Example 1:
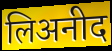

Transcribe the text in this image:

लिअनीद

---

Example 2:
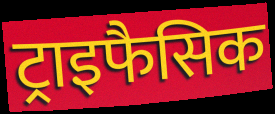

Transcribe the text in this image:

ट्राइफैसिक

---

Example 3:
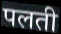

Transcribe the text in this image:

पलती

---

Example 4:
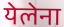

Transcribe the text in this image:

येलेना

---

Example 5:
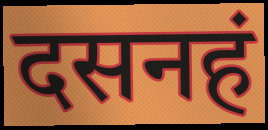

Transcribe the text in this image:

दसनहं